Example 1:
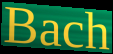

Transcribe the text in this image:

Bach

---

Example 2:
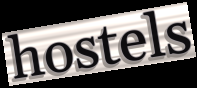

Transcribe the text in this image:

hostels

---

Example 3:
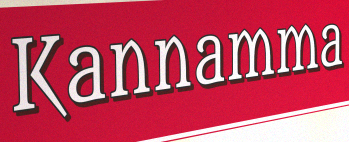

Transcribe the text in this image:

Kannamma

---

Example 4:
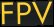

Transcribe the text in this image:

FPV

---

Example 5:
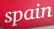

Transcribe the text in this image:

spain